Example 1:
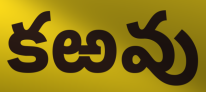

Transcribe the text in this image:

కఱవు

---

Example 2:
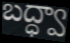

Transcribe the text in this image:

బద్ధ్వా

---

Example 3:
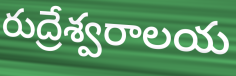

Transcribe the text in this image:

రుద్రేశ్వరాలయ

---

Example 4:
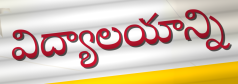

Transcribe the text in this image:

విద్యాలయాన్ని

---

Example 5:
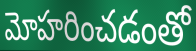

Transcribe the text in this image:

మోహరించడంతో